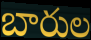
బారుల